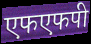
एफएफपी